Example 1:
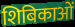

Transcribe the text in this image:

शिबिकाओं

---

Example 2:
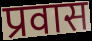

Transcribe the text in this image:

प्रवास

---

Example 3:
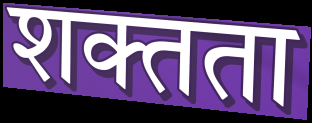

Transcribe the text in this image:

शक्तता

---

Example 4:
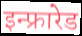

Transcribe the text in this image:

इन्फ्रारेड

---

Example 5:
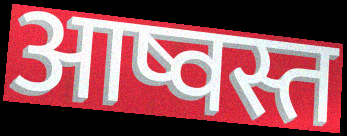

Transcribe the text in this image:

आष्वस्त